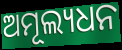
ଅମୂଲ୍ୟଧନ